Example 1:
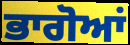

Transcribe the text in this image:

ਭਾਗੋਆਂ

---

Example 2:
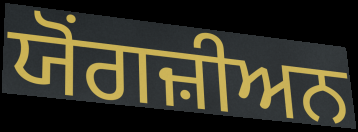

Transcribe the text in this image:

ਯੋਂਗਜ਼ੀਅਨ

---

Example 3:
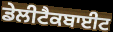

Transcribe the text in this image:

ਡੇਲੀਟੈਕਬਾਈਟ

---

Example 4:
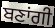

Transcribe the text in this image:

ਬਣਾਂਗੀ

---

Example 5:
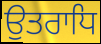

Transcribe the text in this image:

ਉਤਰਾਧਿ